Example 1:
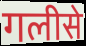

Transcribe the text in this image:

गलीसे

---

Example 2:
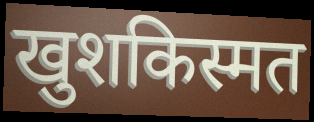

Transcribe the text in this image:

खुशकिस्मत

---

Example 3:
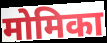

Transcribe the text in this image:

मोमिका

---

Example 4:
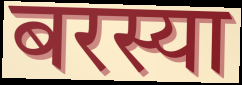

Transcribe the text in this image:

बरस्या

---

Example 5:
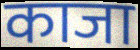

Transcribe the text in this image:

काजा